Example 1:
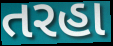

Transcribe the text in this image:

તરહા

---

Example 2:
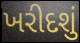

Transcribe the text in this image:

ખરીદશું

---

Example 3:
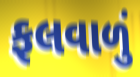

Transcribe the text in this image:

ફલવાળું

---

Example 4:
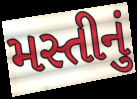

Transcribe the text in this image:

મસ્તીનું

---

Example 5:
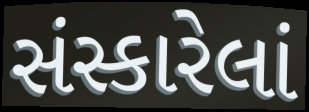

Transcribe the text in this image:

સંસ્કારેલાં